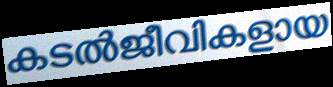
കടൽജീവികളായ